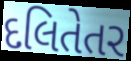
દલિતેતર